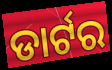
ଡାର୍ଟର